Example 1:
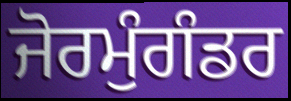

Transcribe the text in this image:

ਜੋਰਮੁੰਗੰਡਰ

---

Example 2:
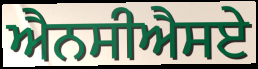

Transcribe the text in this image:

ਐਨਸੀਐਸਏ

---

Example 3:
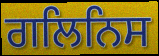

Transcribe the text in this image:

ਗਲਿਨਿਸ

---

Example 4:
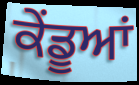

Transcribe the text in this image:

ਕੇਂਡੂਆਂ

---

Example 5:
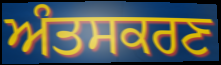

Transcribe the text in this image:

ਅੰਤਸਕਰਣ